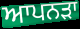
ਆਪਨੜਾ